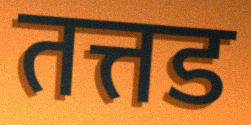
तत्तड